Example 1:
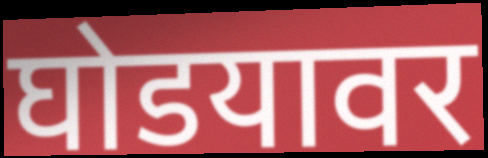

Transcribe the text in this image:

घोडयावर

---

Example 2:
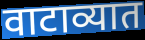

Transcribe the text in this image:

वाटाव्यात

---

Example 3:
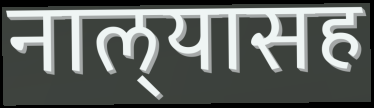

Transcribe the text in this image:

नाल्यासह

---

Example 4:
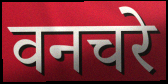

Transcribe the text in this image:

वनचरे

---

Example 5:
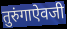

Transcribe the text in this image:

तुरुंगाऐवजी